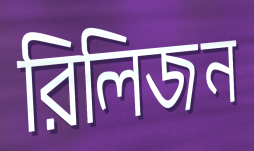
রিলিজন